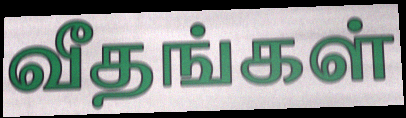
வீதங்கள்